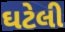
ઘટેલી